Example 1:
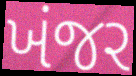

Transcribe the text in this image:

ખંજર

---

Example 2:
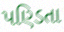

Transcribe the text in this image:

પણ્ડિતા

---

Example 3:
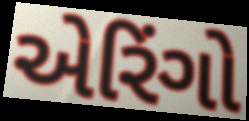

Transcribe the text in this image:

એરિંગો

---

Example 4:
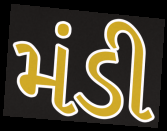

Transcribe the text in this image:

મંડી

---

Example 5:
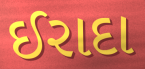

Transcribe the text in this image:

ઈરાદા